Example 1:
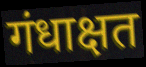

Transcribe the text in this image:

गंधाक्षत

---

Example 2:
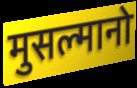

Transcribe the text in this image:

मुसल्मानो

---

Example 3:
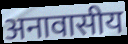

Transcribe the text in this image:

अनावासीय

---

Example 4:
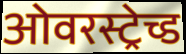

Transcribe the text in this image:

ओवरस्ट्रेच्ड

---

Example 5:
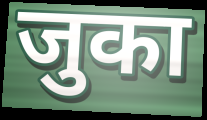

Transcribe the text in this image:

जुका